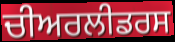
ਚੀਅਰਲੀਡਰਸ